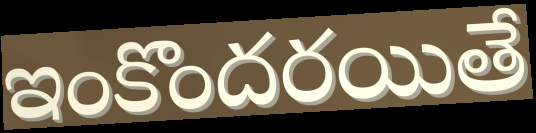
ఇంకొందరయితే